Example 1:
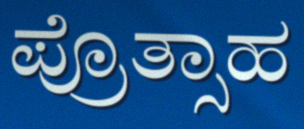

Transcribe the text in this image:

ಪ್ರೊತ್ಸಾಹ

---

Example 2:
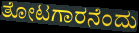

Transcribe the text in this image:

ತೋಟಗಾರನೆಂದು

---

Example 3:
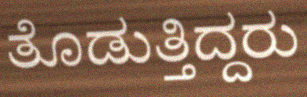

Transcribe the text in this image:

ತೊಡುತ್ತಿದ್ದರು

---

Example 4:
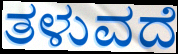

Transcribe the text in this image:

ತಳುವದೆ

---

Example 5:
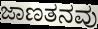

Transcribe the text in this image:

ಜಾಣತನವು